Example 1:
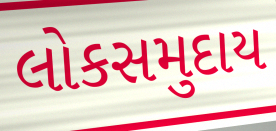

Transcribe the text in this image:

લોકસમુદાય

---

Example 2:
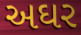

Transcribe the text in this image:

અઘર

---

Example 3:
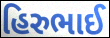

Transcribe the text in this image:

હિરુભાઈ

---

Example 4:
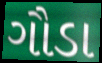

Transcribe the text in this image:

ગૌડા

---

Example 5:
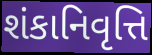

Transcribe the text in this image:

શંકાનિવૃત્તિ